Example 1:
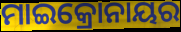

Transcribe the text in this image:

ମାଇକ୍ରୋନାୟର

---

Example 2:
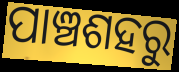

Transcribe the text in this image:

ପାଞ୍ଚଶହରୁ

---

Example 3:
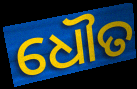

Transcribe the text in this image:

ଧୌତ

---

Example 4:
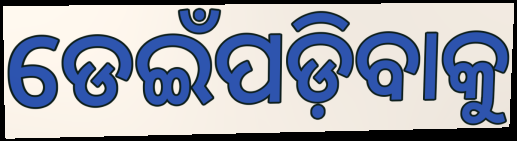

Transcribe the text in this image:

ଡେଇଁପଡ଼ିବାକୁ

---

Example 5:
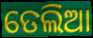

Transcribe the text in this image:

ତେଲିଆ